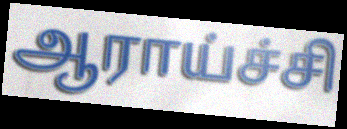
ஆராய்ச்சி